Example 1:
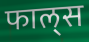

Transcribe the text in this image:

फाल्स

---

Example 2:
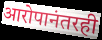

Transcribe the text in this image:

आरोपानंतरही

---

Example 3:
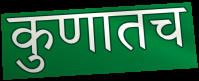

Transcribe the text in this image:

कुणातच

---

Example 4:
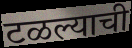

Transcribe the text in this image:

टळल्याची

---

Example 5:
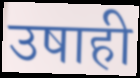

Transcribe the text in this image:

उषाही